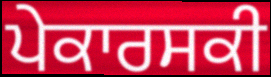
ਪੇਕਾਰਸਕੀ